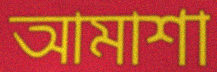
আমাশা